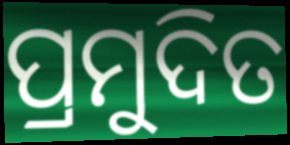
ପ୍ରମୁଦିତ